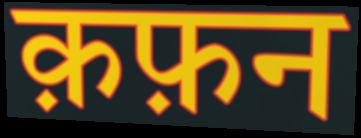
क़फ़न